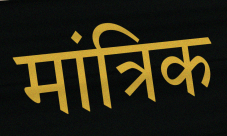
मांत्रिक